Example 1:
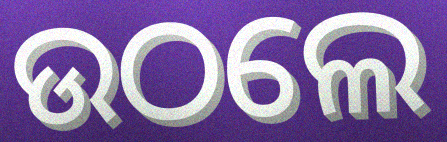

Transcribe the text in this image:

ଉଠଲେ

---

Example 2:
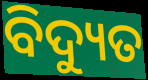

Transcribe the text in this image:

ବିଦ୍ୟୁତ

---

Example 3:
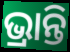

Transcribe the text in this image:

ଭ୍ରାନ୍ତି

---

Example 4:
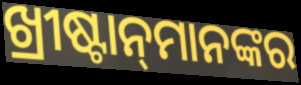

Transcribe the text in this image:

ଖ୍ରୀଷ୍ଟାନ୍‌ମାନଙ୍କର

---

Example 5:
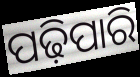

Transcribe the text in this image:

ପଢ଼ିପାରି